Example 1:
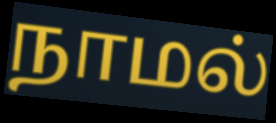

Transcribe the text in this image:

நாமல்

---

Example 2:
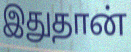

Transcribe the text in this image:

இதுதான்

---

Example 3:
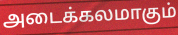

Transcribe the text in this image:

அடைக்கலமாகும்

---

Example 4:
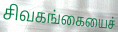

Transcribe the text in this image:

சிவகங்கையைச்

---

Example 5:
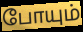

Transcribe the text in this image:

போயும்